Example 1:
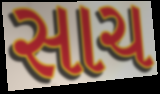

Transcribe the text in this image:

સાચ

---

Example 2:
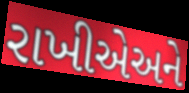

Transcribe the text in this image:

રાખીએઅને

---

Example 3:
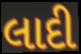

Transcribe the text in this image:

લાદી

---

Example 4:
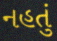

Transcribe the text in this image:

નહતું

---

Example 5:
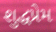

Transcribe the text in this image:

શુદ્ધપ્રેમ